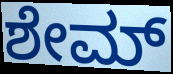
ಶೇಮ್